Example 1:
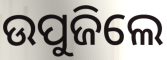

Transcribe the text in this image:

ଉପୁଜିଲେ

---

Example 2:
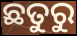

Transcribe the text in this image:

ଛତୁରୁ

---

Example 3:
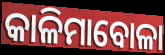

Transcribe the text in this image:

କାଳିମାବୋଳା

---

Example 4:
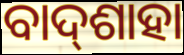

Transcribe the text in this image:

ବାଦ୍‌ଶାହା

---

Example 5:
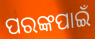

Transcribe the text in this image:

ପରଙ୍କପାଇଁ